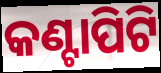
କଣ୍ଟାପିଟି